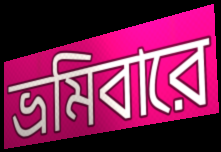
ভ্রমিবারে